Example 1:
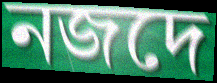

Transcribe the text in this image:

নজদে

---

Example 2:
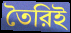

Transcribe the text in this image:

তৈরিই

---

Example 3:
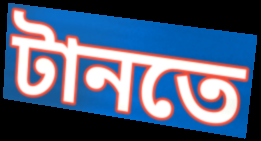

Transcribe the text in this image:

টানতে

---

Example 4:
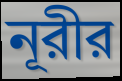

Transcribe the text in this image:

নূরীর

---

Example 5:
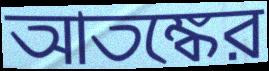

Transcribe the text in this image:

আতঙ্কের